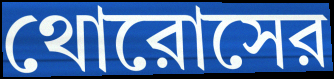
থোরোসের